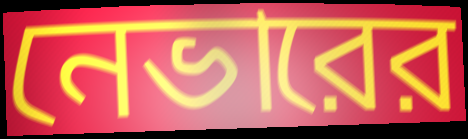
নেভারের